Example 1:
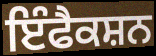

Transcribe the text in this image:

ਇੰਫੈਕਸ਼ਨ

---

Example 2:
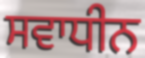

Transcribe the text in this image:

ਸਵਾਧੀਨ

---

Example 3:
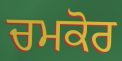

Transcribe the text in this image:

ਚਮਕੋਰ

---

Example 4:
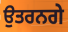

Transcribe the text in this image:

ਉਤਰਨਗੇ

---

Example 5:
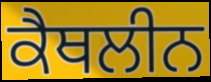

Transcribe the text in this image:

ਕੈਥਲੀਨ